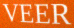
VEER